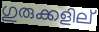
ഗുരുക്കളില്